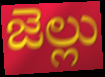
జెల్లు